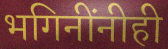
भगिनींनीही